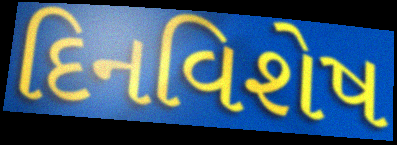
દિનવિશેષ